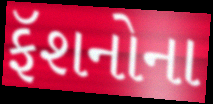
ફૅશનોના